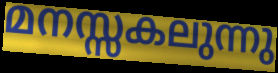
മനസ്സകലുന്നു